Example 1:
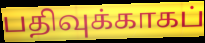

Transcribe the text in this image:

பதிவுக்காகப்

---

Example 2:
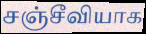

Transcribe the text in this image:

சஞ்சீவியாக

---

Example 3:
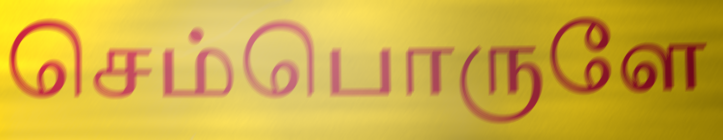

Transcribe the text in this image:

செம்பொருளே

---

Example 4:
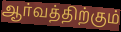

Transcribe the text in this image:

ஆர்வத்திற்கும்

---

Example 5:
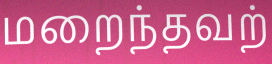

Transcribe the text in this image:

மறைந்தவற்